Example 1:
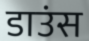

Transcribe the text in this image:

डाउंस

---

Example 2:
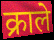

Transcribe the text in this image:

क्राले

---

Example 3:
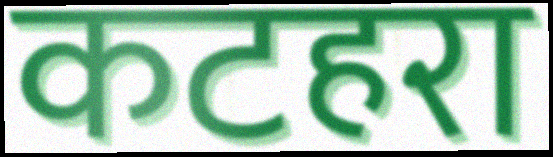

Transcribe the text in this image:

कटहरा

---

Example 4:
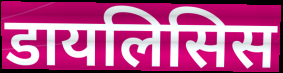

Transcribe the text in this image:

डायलिसिस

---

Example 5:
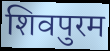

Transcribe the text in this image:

शिवपुरम